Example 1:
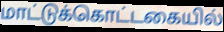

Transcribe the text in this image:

மாட்டுக்கொட்டகையில்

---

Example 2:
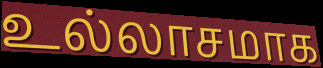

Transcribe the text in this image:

உல்லாசமாக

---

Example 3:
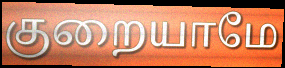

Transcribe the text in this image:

குறையாமே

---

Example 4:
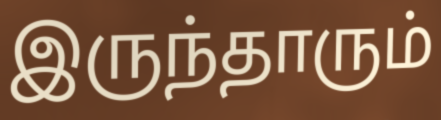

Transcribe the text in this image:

இருந்தாரும்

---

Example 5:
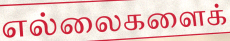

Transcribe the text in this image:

எல்லைகளைக்